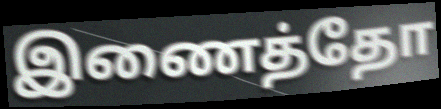
இணைத்தோ